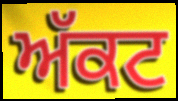
ਅੱਕਟ